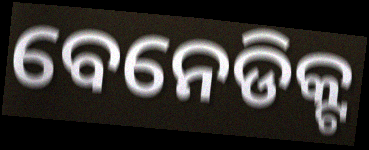
ବେନେଡିକ୍ଟ